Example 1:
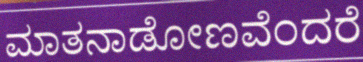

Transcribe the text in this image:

ಮಾತನಾಡೋಣವೆಂದರೆ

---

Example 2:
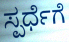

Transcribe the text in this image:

ಸ್ಪರ್ಧೆಗೆ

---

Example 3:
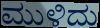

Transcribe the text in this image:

ಮುಳಿದು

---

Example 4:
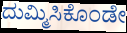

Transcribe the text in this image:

ದುಮ್ಮಿಸಿಕೊಂಡೇ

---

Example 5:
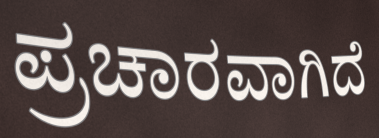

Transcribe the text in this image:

ಪ್ರಚಾರವಾಗಿದೆ